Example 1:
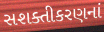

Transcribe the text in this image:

સશક્તીકરણનાં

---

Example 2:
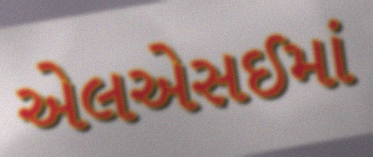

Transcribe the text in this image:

એલએસઈમાં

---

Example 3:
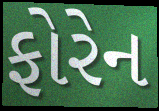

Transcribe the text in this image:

ફોરેન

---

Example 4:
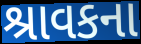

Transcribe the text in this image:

શ્રાવકના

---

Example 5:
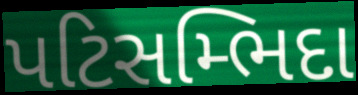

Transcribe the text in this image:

પટિસમ્ભિદા